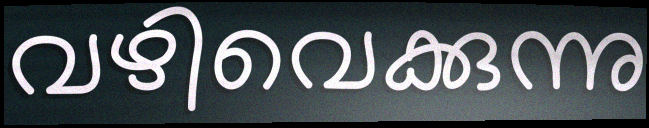
വഴിവെക്കുന്നു